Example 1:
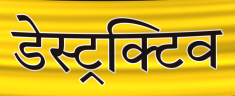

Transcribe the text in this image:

डेस्ट्रक्टिव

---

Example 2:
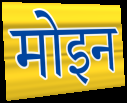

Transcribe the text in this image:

मोइन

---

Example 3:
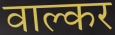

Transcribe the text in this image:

वाल्कर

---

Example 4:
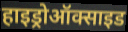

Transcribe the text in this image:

हाइड्रोऑक्साइड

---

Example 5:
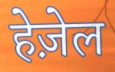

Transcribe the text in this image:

हेज़ेल